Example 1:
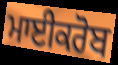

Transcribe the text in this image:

ਮਾਈਕਰੋਬ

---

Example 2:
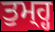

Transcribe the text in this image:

ਤੁਮ੍ਹ੍ਹ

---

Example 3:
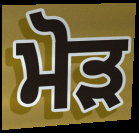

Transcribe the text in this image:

ਮੋਡ਼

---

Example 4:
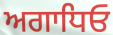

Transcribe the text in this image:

ਅਗਾਧਿਓ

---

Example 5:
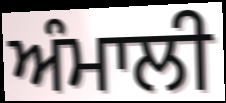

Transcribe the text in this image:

ਅੰਮਾਲੀ